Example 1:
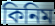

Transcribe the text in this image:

কিনিম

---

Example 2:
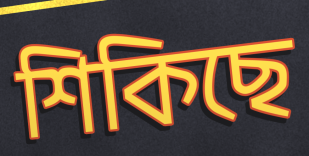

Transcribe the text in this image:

শিকিছে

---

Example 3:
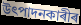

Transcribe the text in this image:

উৎপাদনকাৰীৰ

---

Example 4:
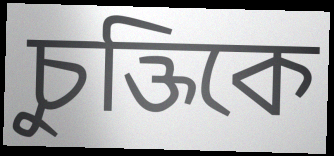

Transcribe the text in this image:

চুক্তিকে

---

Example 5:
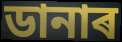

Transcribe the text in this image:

ডানাৰ